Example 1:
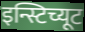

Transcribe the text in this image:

इन्स्टिच्यूट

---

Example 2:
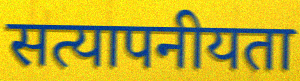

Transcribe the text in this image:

सत्यापनीयता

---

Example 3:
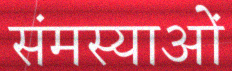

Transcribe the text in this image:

संमस्याओं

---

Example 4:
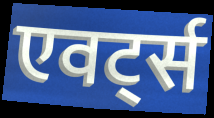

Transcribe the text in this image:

एवर्ट्स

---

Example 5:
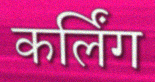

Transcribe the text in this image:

कर्लिंग